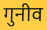
गुनीव